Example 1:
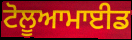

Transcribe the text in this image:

ਟੋਲੂਆਮਾਈਡ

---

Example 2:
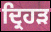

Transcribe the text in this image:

ਦ੍ਰਿਹੜ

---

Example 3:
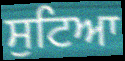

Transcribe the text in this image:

ਸੁਟਿਆ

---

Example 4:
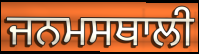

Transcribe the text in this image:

ਜਨਮਸਥਾਲੀ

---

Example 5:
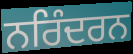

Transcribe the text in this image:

ਨਰਿੰਦਰਨ